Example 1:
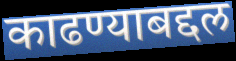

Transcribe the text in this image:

काढण्याबद्दल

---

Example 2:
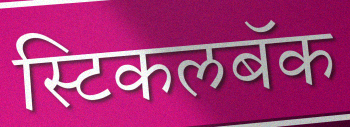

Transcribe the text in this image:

स्टिकलबॅक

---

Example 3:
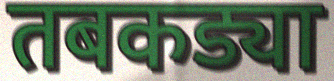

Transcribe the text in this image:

तबकड्या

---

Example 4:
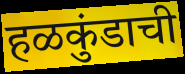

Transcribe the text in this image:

हळकुंडाची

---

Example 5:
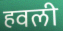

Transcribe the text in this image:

हवली